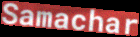
Samachar